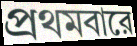
প্রথমবারে